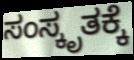
ಸಂಸ್ಕೃತಕ್ಕೆ